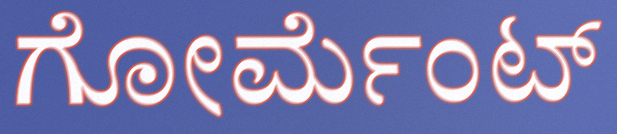
ಗೋರ್ಮೆಂಟ್